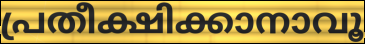
പ്രതീക്ഷിക്കാനാവൂ